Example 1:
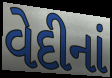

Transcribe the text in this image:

વેદીનાં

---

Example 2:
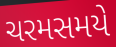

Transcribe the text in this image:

ચરમસમયે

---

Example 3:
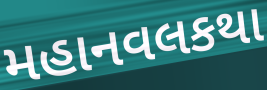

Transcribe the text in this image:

મહાનવલકથા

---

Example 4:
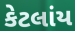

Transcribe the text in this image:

કેટલાંય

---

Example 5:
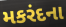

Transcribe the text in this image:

મકરંદના